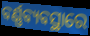
ବର୍ଣ୍ଣବ୍ୟବସ୍ଥାରେ